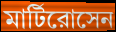
মার্টিরোসেন